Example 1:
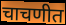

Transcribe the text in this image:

चाचणीत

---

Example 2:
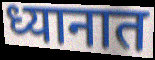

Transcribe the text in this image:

ध्यानात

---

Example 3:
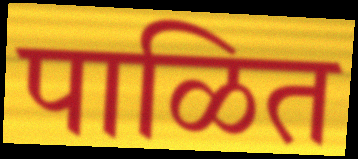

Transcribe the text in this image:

पाळित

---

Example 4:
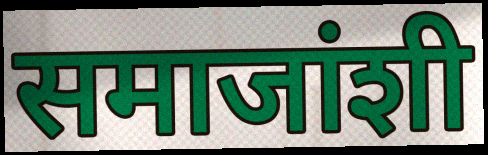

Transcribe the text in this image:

समाजांशी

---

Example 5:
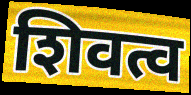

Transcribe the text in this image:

शिवत्व